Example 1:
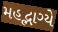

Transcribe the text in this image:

મહદ્ભાગ્યે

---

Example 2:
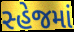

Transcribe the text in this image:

સ્હેજમાં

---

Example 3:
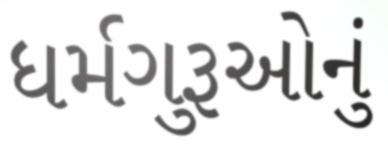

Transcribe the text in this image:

ધર્મગુરૂઓનું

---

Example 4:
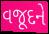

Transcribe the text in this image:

વજૂદને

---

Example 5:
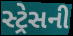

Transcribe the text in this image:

સ્ટ્રેસની